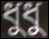
ধুধু